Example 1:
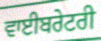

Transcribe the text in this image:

ਵਾਈਬਰੇਟਰੀ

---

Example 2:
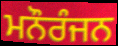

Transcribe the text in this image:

ਮਨੌਰੰਜਨ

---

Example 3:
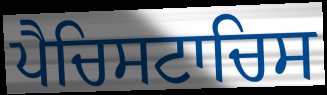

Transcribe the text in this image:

ਪੈਚਿਸਟਾਚਿਸ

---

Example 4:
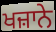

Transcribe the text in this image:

ਖਜ਼ਾਨੇ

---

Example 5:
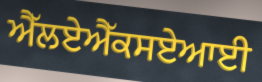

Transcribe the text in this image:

ਐੱਲਏਐੱਕਸਏਆਈ